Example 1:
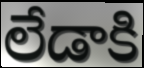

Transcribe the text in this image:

లేడాకి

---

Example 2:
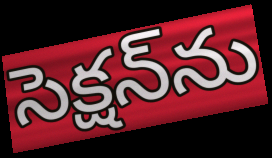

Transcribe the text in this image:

సెక్షన్‌ను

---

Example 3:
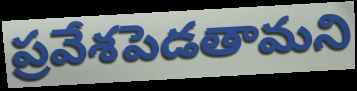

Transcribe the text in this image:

ప్రవేశపెడతామని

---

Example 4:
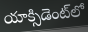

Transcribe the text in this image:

యాక్సిడెంట్‌లో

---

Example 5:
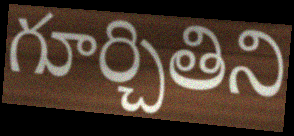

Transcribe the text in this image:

గూర్చితిని